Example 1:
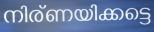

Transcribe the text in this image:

നിര്ണയിക്കട്ടെ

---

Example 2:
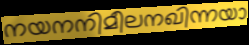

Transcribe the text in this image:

നയനനിമീലനഖിന്നയാ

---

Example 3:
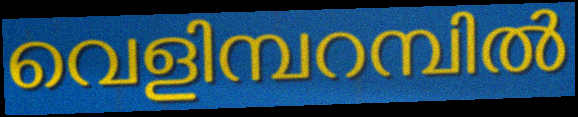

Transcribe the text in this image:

വെളിമ്പറമ്പിൽ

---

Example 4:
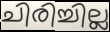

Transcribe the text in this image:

ചിരിച്ചില്ല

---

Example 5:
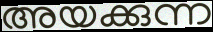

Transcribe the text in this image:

അയക്കുന്ന